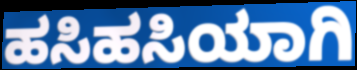
ಹಸಿಹಸಿಯಾಗಿ